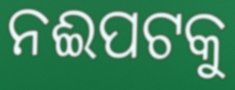
ନଈପଟକୁ